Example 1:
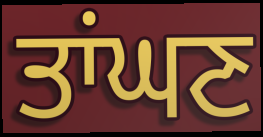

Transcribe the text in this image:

ਤਾਂਘਣ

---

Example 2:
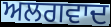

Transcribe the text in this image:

ਅਲਗਵਾਦ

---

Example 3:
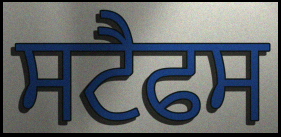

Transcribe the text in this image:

ਸਟੈਫਸ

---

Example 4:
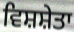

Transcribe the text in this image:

ਵਿਸ਼ਸ਼ੇਤਾ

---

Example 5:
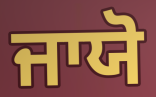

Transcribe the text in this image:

ਜਾਯੋ